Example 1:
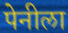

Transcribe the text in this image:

पेनीला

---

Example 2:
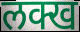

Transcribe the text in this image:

लक्ख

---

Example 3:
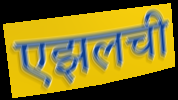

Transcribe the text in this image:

एझलची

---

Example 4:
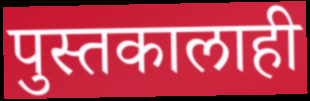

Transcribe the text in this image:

पुस्तकालाही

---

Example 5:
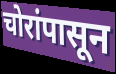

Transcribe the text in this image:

चोरांपासून